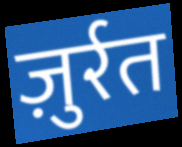
ज़ुर्रत